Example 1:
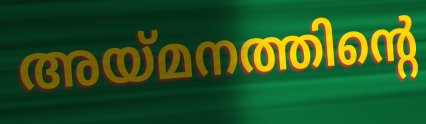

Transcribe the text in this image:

അയ്മനത്തിന്റെ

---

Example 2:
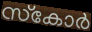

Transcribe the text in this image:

സ്‌കോർ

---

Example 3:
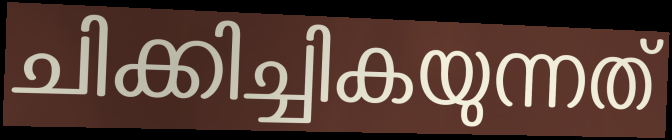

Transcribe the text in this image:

ചിക്കിച്ചികയുന്നത്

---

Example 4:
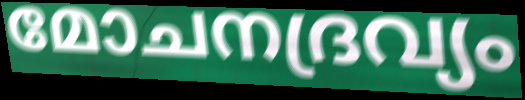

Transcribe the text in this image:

മോചനദ്രവ്യം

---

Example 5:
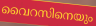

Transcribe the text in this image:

വൈറസിനെയും